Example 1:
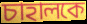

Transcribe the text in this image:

চাহালকে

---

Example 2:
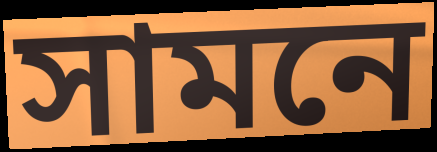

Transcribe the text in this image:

সামনে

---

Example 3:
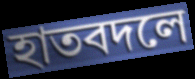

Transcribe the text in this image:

হাতবদলে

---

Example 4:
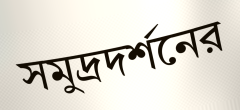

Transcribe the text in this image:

সমুদ্রদর্শনের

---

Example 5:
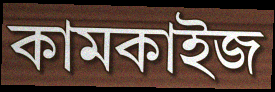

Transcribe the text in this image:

কামকাইজ